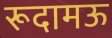
रूदामऊ